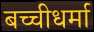
बच्चीधर्मा